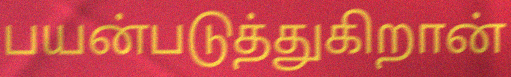
பயன்படுத்துகிறான்